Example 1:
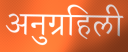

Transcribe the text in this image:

अनुग्रहिली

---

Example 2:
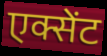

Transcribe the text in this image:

एक्सेंट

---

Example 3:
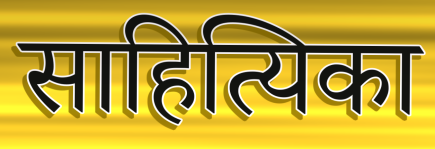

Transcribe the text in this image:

साहित्यिका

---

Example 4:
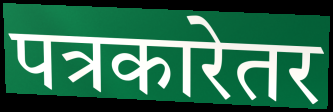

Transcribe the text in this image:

पत्रकारेतर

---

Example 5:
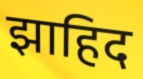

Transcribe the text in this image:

झाहिद